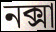
নক্সা